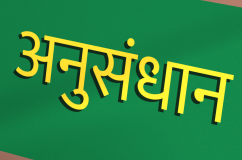
अनुसंधान